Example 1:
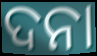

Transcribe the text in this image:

ଦନା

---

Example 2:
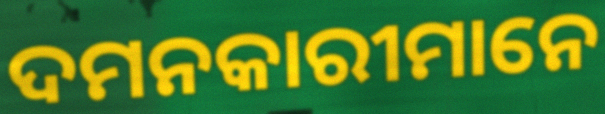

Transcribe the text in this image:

ଦମନକାରୀମାନେ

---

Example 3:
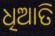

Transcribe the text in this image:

ଧିଆତି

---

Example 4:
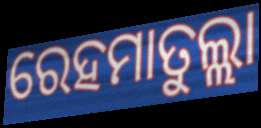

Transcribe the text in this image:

ରେହମାତୁଲ୍ଲା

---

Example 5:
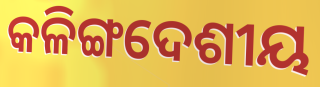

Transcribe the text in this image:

କଳିଙ୍ଗଦେଶୀୟ